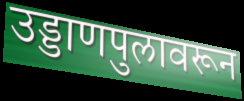
उड्डाणपुलावरून